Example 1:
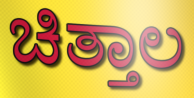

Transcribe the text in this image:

ಚಿತ್ತಾಲ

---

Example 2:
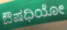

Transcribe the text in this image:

ಔಷಧಿಯೋ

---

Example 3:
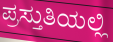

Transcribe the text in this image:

ಪ್ರಸ್ತುತಿಯಲ್ಲಿ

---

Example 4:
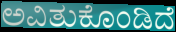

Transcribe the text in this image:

ಅವಿತುಕೊಂಡಿದೆ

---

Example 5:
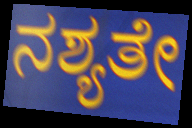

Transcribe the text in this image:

ನಶ್ಯತೇ